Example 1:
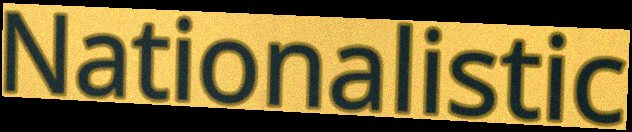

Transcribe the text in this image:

Nationalistic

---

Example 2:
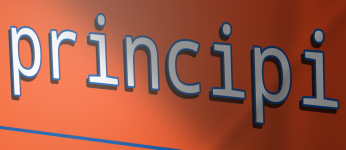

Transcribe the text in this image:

principi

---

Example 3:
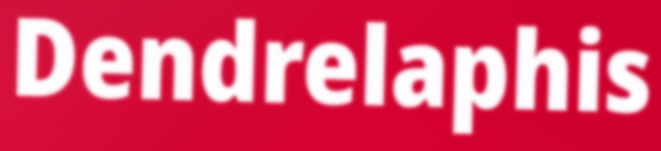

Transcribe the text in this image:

Dendrelaphis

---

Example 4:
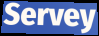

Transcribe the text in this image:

Servey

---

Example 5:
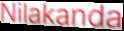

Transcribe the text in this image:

Nilakanda